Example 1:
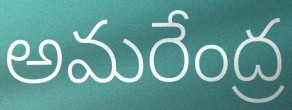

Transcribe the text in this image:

అమరేంద్ర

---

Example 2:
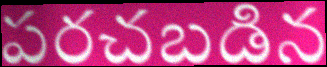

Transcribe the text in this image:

పరచబడిన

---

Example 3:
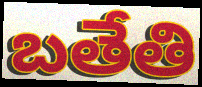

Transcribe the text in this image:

బతేతి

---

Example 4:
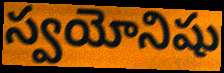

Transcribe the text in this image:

స్వయోనిషు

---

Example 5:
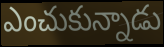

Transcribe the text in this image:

ఎంచుకున్నాడు